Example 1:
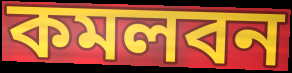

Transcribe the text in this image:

কমলবন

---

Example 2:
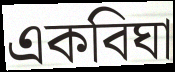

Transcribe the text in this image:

একবিঘা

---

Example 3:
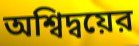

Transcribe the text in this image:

অশ্বিদ্বয়ের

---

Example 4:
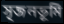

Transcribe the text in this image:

সৃজনভূমি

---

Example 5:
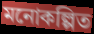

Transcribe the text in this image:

মনোকল্পিত